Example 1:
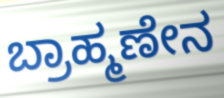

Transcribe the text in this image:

ಬ್ರಾಹ್ಮಣೇನ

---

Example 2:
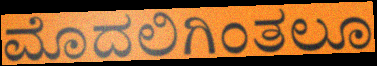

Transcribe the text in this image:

ಮೊದಲಿಗಿಂತಲೂ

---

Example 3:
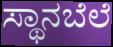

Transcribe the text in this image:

ಸ್ಥಾನಬೆಲೆ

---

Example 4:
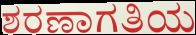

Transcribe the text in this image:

ಶರಣಾಗತಿಯ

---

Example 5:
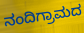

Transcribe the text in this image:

ನಂದಿಗ್ರಾಮದ